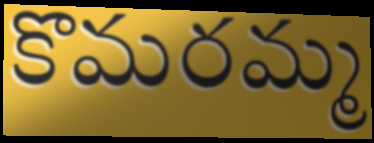
కొమరమ్మ